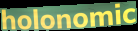
holonomic